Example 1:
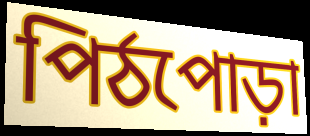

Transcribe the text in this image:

পিঠপোড়া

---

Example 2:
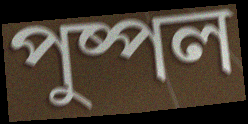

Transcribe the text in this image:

পুষ্পল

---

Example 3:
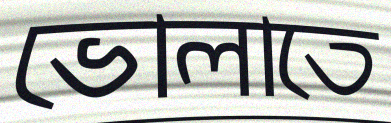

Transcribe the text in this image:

ভোলাতে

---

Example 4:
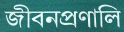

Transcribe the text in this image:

জীবনপ্রণালি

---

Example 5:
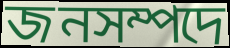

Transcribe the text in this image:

জনসম্পদে